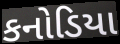
કનોડિયા